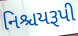
નિશ્ચયરૂપી